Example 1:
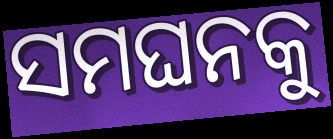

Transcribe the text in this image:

ସମଘନକୁ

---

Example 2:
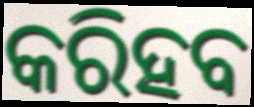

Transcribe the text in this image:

କରିହବ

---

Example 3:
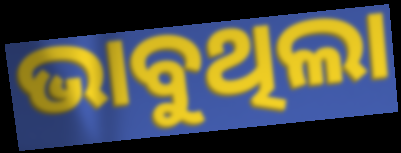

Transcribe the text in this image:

ଭାବୁଥିଲା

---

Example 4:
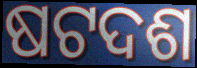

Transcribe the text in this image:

ଷଟଦଶ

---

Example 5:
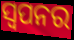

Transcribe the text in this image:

ସ୍ଵପନର